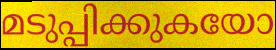
മടുപ്പിക്കുകയോ